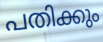
പതിക്കും